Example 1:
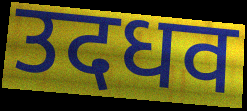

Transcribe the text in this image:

उदधव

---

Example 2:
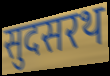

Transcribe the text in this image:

सुदसरथ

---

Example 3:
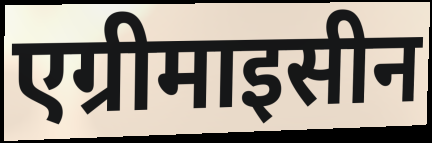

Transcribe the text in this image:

एग्रीमाइसीन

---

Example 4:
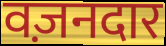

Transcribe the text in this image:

वज़नदार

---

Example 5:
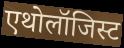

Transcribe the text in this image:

एथोलॉजिस्ट